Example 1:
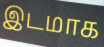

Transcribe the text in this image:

இடமாக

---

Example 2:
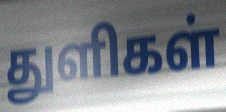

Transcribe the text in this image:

துளிகள்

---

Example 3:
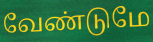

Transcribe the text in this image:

வேண்டுமே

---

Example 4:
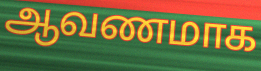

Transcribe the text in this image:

ஆவணமாக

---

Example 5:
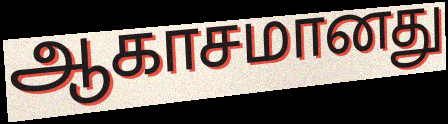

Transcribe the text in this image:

ஆகாசமானது